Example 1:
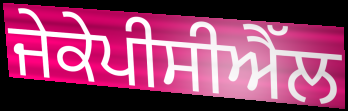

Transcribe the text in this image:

ਜੇਕੇਪੀਸੀਐੱਲ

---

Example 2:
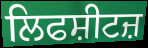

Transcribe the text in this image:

ਲਿਫਸ਼ੀਟਜ਼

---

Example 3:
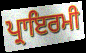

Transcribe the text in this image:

ਪ੍ਰਾਇਰਮੀ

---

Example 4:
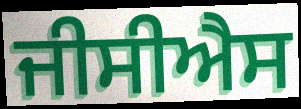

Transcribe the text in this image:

ਜੀਸੀਐਸ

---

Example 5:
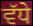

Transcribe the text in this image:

ਵੱਧੇ